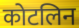
कोटलिन